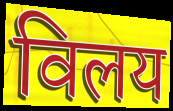
विलय